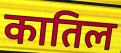
कातिल